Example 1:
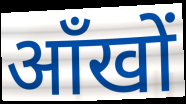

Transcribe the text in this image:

ऑंखों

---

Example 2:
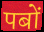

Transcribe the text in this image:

पबों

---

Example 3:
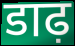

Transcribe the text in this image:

डाढ़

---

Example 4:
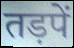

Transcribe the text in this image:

तड़पें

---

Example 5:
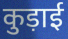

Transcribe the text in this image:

कुड़ाई